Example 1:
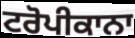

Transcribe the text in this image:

ਟਰੋਪੀਕਾਨਾ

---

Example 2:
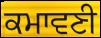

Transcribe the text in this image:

ਕਮਾਵਣੀ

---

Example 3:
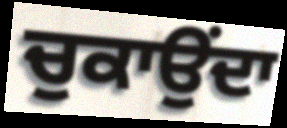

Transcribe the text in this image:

ਚੁਕਾਉਂਦਾ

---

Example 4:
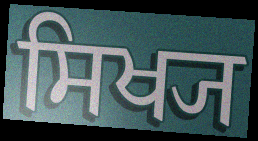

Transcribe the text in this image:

ਸਿਖ੍ਯ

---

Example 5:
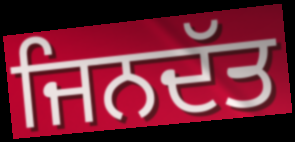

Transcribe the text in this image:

ਜਿਨਦੱਤ